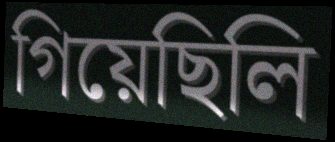
গিয়েছিলি